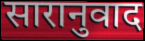
सारानुवाद